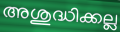
അശുദ്ധിക്കല്ല